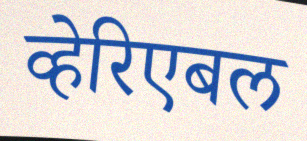
व्हेरिएबल